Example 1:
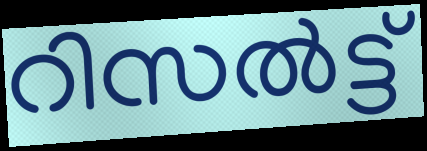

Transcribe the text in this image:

റിസൽട്ട്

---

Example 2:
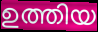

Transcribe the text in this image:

ഉത്തിയ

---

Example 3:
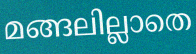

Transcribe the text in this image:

മങ്ങലില്ലാതെ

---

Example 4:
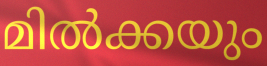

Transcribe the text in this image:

മിൽക്കയും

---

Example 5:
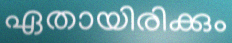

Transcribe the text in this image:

ഏതായിരിക്കും